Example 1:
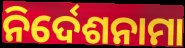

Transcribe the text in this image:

ନିର୍ଦେଶନାମା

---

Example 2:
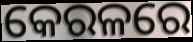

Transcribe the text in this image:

କେରଳରେ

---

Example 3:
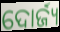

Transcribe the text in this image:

ଦୋର୍ଜ୍ୟ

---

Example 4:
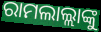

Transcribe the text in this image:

ରାମଲାଲ୍ଲାଙ୍କୁ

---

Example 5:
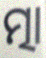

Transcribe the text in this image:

ତ୍ମା